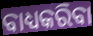
ବାଧ୍ୟକରିବା